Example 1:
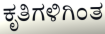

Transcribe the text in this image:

ಕೃತಿಗಳಿಗಿಂತ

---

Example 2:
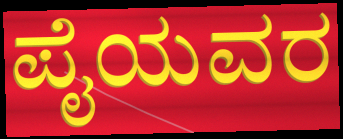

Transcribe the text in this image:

ಪೈಯವರ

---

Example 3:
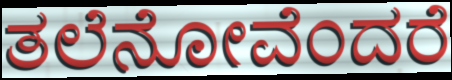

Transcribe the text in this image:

ತಲೆನೋವೆಂದರೆ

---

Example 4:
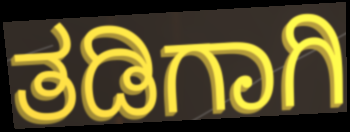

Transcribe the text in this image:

ತಡಿಗಾಗಿ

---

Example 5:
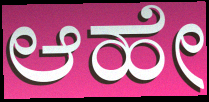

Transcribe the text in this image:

ಆಹೇ